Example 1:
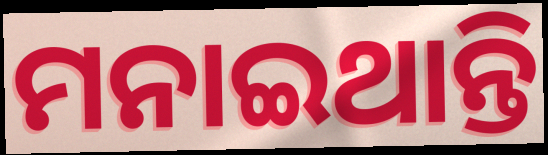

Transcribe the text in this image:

ମନାଇଥାନ୍ତି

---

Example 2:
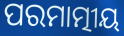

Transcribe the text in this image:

ପରମାତ୍ମୀୟ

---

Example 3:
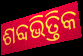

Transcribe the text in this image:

ଶବ୍ଦଭିତ୍ତିକ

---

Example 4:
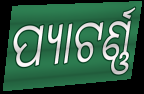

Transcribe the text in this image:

ପ୍ୟାଟର୍ଣ୍ଣ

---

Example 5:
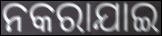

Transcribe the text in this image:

ନକରାଯାଇ